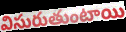
విసురుతుంటాయి